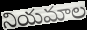
నియమాల